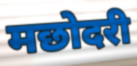
मछोदरी